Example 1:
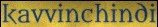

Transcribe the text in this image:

kavvinchindi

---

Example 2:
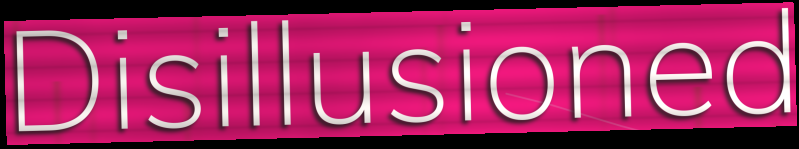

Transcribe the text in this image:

Disillusioned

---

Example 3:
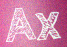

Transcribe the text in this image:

Ax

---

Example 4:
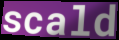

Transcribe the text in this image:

scald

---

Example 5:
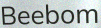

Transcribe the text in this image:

Beebom